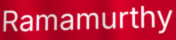
Ramamurthy